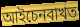
আইচেনবাখত